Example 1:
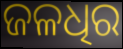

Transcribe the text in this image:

ଜଳଧିର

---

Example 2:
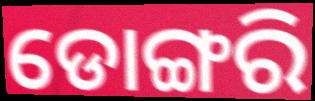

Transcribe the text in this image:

ଡୋଙ୍ଗରି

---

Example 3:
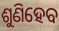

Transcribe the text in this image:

ଶୁଣିହେବ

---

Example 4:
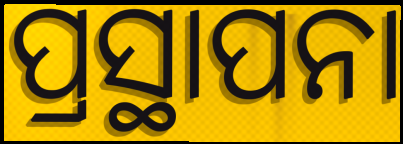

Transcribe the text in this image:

ପ୍ରସ୍ଥାପନା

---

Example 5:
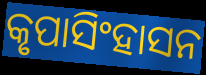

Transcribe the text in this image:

କୃପାସିଂହାସନ